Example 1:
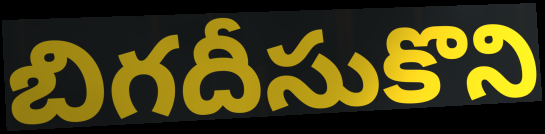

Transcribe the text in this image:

బిగదీసుకొని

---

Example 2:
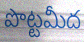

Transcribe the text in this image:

పొట్టమీద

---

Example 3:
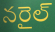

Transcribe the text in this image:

నరైల్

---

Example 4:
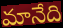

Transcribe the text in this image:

మానేది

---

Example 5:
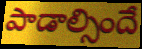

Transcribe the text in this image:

పాడాల్సిందే